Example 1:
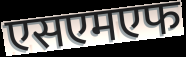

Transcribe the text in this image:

एसएमएफ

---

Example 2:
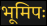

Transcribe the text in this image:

भूमिपः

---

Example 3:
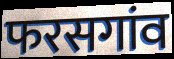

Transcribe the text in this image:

फरसगांव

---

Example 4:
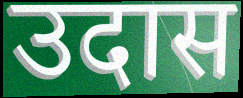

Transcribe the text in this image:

उदास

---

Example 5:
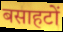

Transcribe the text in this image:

बसाहटों